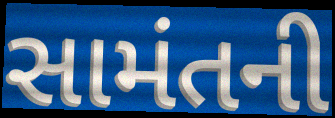
સામંતની